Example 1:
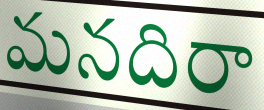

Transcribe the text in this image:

మనదిరా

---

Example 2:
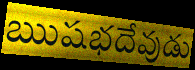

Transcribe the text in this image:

ఋషభదేవుడు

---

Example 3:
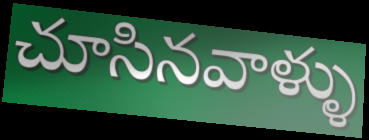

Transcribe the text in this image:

చూసినవాళ్ళు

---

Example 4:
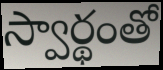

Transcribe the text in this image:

స్వార్థంతో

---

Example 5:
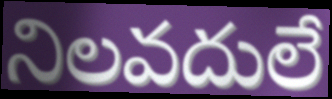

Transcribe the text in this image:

నిలవదులే